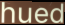
hued